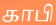
காபி